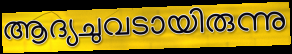
ആദ്യചുവടായിരുന്നു